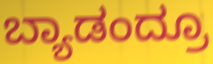
ಬ್ಯಾಡಂದ್ರೂ